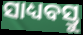
ସାଧ୍ୟବସ୍ତୁ